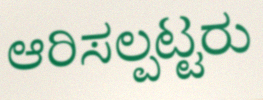
ಆರಿಸಲ್ಪಟ್ಟರು